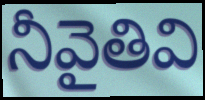
నీవైతివి